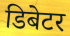
डिबेटर